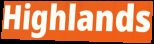
Highlands